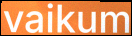
vaikum